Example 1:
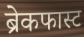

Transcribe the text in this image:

ब्रेकफास्ट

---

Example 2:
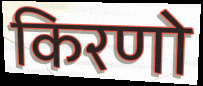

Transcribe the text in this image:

किरणो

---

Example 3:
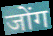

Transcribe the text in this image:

जोंग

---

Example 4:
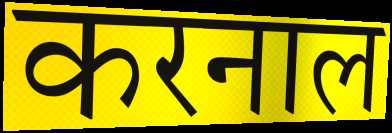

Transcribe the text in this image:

करनाल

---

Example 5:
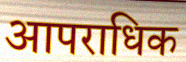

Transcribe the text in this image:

आपराधिक